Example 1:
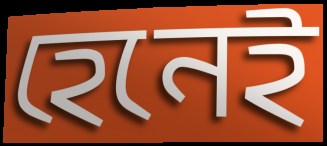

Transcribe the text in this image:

হেনেই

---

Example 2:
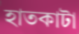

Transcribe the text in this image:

হাতকাটা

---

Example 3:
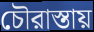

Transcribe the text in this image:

চৌরাস্তায়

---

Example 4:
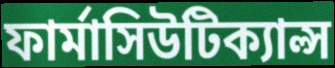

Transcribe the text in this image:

ফার্মাসিউটিক্যাল্স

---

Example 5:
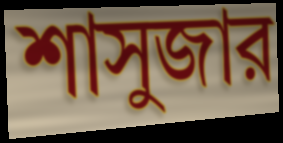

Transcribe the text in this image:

শাসুজার